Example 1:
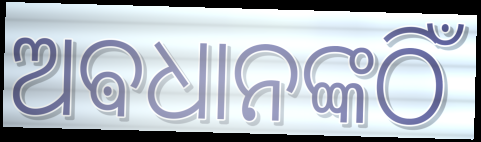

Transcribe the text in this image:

ଅଵଧାନଙ୍କଠିଁ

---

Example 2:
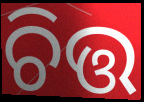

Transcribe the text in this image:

ଚିତ୍ତ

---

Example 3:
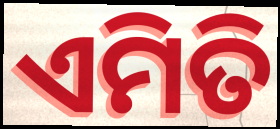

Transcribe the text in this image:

ଏମିତି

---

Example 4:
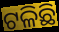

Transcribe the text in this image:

ଟଳିଛି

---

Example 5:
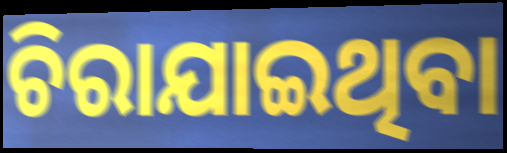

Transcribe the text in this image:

ଚିରାଯାଇଥିବା